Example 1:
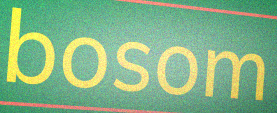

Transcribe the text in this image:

bosom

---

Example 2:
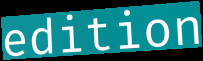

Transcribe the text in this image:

edition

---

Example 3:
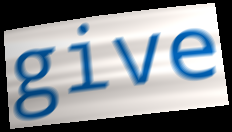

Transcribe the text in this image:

give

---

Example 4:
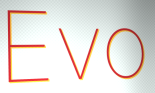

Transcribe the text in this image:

Evo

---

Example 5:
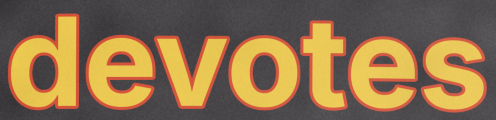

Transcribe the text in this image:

devotes